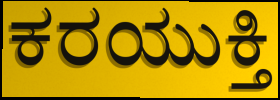
ಕರಯುಕ್ತಿ